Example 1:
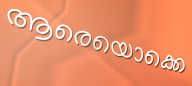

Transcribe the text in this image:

ആരെയൊക്കെ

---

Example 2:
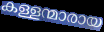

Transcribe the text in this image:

കള്ളന്മാരായ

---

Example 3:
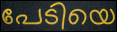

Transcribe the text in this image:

പേടിയെ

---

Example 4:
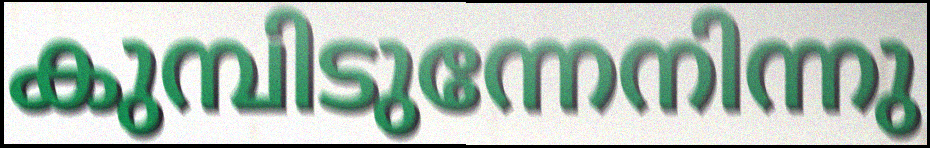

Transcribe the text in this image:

കുമ്പിടുന്നേനിന്നു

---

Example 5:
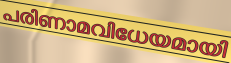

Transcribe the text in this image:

പരിണാമവിധേയമായി